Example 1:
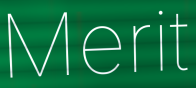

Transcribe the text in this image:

Merit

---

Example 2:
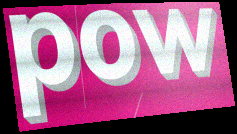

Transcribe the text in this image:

pow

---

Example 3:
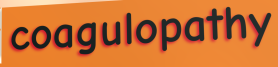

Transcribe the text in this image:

coagulopathy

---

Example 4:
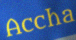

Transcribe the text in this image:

Accha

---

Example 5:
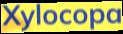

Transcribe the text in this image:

Xylocopa